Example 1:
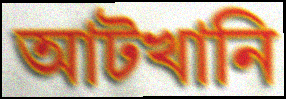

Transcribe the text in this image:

আটখানি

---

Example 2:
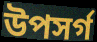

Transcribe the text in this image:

উপসর্গ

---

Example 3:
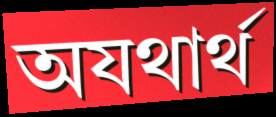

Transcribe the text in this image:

অযথার্থ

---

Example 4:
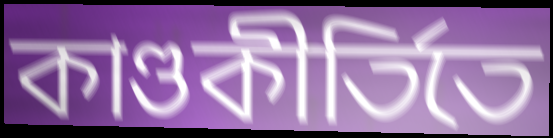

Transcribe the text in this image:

কাণ্ডকীর্তিতে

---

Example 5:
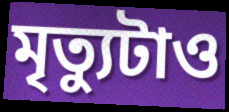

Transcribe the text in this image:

মৃত্যুটাও